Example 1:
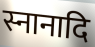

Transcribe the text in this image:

स्नानादि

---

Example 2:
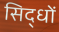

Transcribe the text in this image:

सिद्धों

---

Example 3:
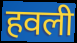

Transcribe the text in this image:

हवली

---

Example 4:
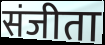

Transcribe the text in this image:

संजीता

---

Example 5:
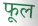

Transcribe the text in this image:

फूल